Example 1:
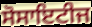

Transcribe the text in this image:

ਸੋਸਾਇਟੀਜ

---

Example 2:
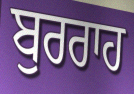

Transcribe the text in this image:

ਬੁਰਰਾਹ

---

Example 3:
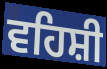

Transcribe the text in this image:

ਵਹਿਸ਼ੀ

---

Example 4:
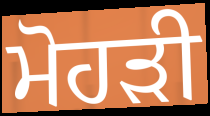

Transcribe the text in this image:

ਮੋਹੜੀ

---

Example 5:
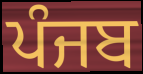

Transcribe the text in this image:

ਪੰਜਬ